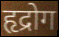
हृद्रोग